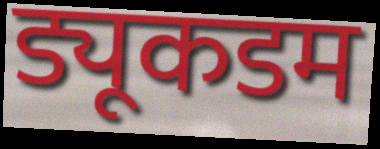
ड्यूकडम